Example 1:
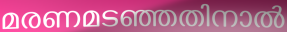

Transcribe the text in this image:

മരണമടഞ്ഞതിനാൽ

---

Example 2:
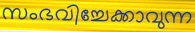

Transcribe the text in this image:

സംഭവിച്ചേക്കാവുന്ന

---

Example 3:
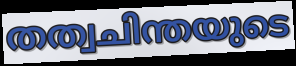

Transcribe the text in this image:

തത്വചിന്തയുടെ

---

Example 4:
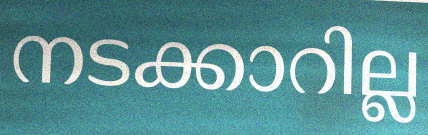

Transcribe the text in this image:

നടക്കാറില്ല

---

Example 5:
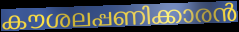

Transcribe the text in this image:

കൗശലപ്പണിക്കാരൻ